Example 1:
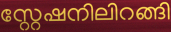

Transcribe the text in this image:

സ്റ്റേഷനിലിറങ്ങി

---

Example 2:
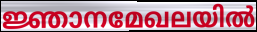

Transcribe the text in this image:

ജ്ഞാനമേഖലയിൽ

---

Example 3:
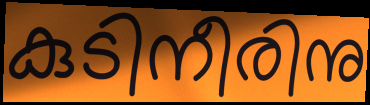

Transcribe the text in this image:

കുടിനീരിനു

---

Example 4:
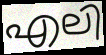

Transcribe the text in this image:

എലി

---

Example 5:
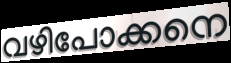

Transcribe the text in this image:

വഴിപോക്കനെ